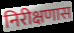
निरीक्षणास